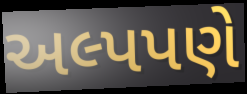
અલ્પપણે